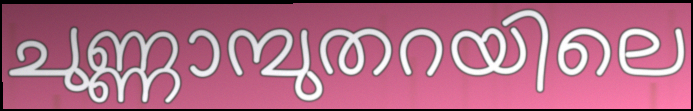
ചുണ്ണാമ്പുതറയിലെ